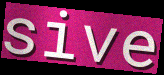
sive